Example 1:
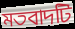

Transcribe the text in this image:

মতবাদটি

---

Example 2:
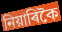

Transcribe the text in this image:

নিয়াৰিকৈ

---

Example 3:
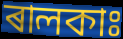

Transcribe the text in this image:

ৰালকাঃ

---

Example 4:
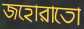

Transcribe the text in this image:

জহোৱাতো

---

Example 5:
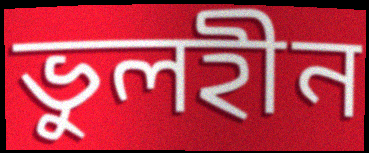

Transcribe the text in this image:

ভুলহীন